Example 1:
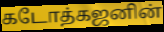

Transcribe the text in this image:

கடோத்கஜனின்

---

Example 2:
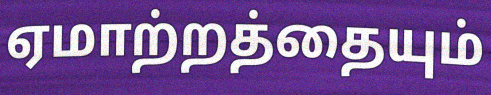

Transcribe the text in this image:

ஏமாற்றத்தையும்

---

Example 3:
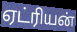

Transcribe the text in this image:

ஏட்ரியன்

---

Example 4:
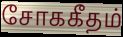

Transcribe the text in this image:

சோககீதம்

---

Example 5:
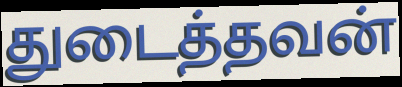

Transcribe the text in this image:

துடைத்தவன்